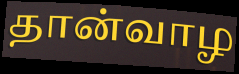
தான்வாழ